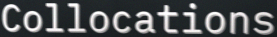
Collocations